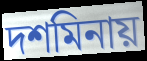
দশমিনায়